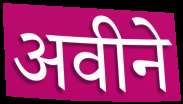
अवीने